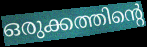
ഒരുക്കത്തിന്റെ